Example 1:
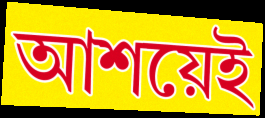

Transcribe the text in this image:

আশয়েই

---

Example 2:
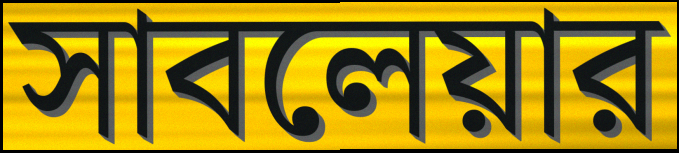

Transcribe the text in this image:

সাবলেয়ার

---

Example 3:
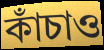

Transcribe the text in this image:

কাঁচাও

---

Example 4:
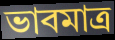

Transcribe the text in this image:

ভাবমাত্র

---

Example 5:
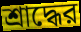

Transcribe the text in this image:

শ্রাদ্ধের